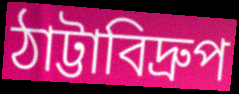
ঠাট্টাবিদ্রুপ